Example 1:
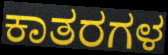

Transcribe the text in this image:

ಕಾತರಗಳ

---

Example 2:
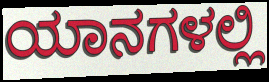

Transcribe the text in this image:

ಯಾನಗಳಲ್ಲಿ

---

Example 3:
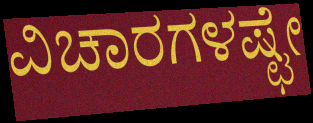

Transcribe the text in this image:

ವಿಚಾರಗಳಷ್ಟೇ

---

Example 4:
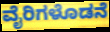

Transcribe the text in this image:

ವೈರಿಗಳೊಡನೆ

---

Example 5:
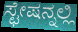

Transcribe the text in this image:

ಸ್ಟೇಷನ್ನಲ್ಲಿ